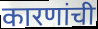
कारणांची